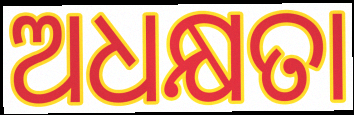
ଅଧକ୍ଷତା